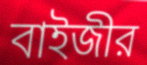
বাইজীর